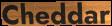
Cheddar